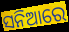
ସନିଆରେ